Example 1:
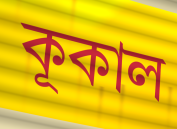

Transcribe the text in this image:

কূকাল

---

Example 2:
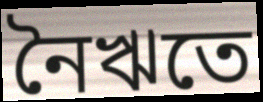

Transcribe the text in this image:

নৈঋতে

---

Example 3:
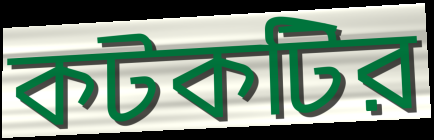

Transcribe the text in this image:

কটকটির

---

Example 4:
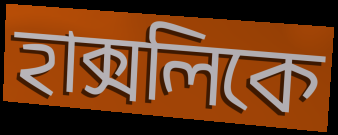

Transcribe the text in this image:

হাক্সলিকে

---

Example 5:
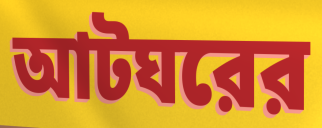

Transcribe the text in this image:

আটঘরের